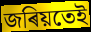
জৰিয়তেই